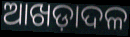
ଆଖଡ଼ାଦଳ